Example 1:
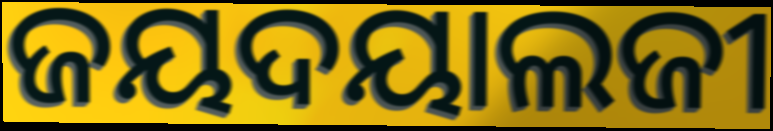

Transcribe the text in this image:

ଜୟଦୟାଲଜୀ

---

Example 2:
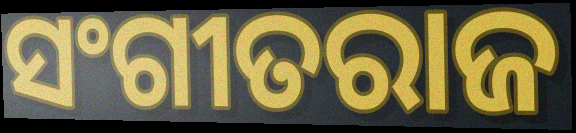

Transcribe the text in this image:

ସଂଗୀତରାଜ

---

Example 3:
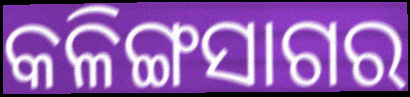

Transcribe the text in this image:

କଳିଙ୍ଗସାଗର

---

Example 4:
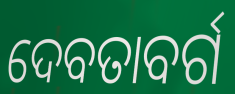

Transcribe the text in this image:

ଦେବତାବର୍ଗ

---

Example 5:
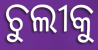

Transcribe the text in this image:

ଚୁଲୀକୁ